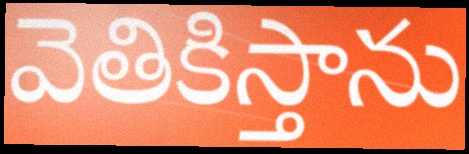
వెతికిస్తాను